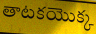
తాటకయొక్క